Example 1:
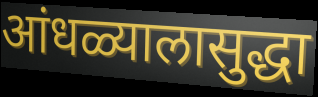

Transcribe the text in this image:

आंधळ्यालासुद्धा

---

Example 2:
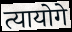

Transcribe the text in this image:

त्यायोगे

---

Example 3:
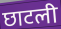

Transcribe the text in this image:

छाटली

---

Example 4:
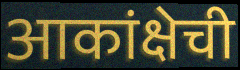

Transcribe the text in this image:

आकांक्षेची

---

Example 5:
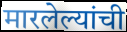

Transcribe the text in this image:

मारलेल्यांची